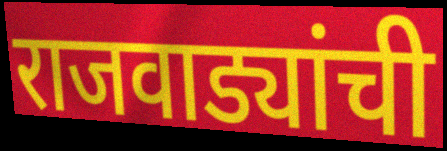
राजवाड्यांची